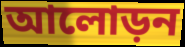
আলোড়ন